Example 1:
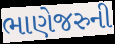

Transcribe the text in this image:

ભાણેજરુની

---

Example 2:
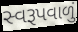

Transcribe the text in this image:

સ્વરૂપવાળું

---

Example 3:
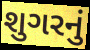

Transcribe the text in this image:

શુગરનું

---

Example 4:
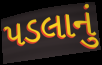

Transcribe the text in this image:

પડલાનું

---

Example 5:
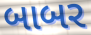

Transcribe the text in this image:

બાબર